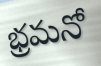
భ్రమనో